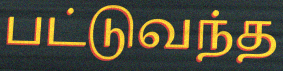
பட்டுவந்த